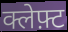
क्लेफ़्ट